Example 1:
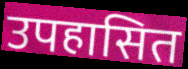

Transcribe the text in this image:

उपहासित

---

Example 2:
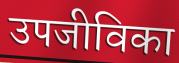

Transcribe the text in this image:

उपजीविका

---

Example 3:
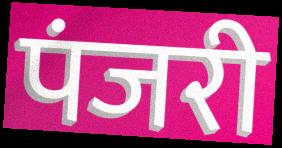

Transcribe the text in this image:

पंजरी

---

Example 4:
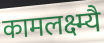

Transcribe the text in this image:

कामलक्ष्म्यै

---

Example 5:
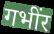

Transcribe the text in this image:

गभींर